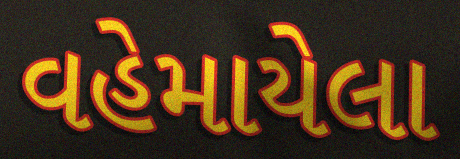
વહેમાયેલા